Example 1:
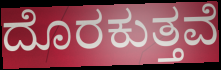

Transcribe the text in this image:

ದೊರಕುತ್ತವೆ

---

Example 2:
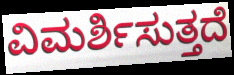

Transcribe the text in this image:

ವಿಮರ್ಶಿಸುತ್ತದೆ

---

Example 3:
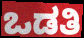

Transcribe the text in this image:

ಒಡತಿ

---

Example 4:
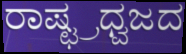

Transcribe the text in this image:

ರಾಷ್ಟ್ರಧ್ವಜದ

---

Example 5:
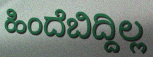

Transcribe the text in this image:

ಹಿಂದೆಬಿದ್ದಿಲ್ಲ